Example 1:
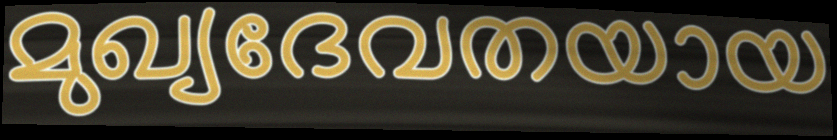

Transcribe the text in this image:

മുഖ്യദേവതയായ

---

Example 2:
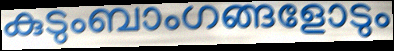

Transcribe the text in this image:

കുടുംബാംഗങ്ങളോടും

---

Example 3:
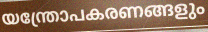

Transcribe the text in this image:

യന്ത്രോപകരണങ്ങളും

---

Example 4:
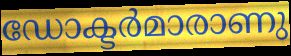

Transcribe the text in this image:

ഡോക്ടർമാരാണു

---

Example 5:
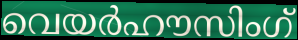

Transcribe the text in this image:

വെയർഹൗസിംഗ്